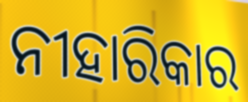
ନୀହାରିକାର